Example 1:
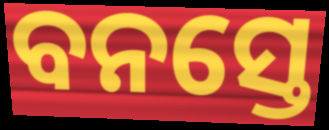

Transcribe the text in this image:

ବନସ୍ତେ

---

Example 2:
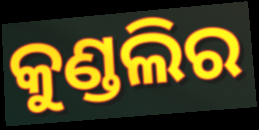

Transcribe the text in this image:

କୁଣ୍ଡଲିର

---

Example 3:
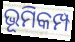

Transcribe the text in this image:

ଭୂମିକମ୍ପ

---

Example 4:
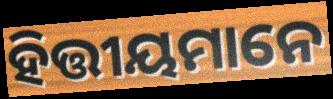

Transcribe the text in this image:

ହିତ୍ତୀୟମାନେ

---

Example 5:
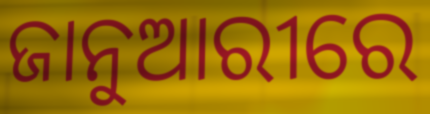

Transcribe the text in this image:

ଜାନୁଆରୀରେ